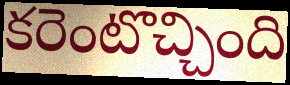
కరెంటొచ్చింది